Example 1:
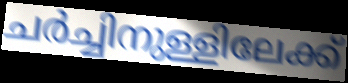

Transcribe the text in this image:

ചർച്ചിനുള്ളിലേക്ക്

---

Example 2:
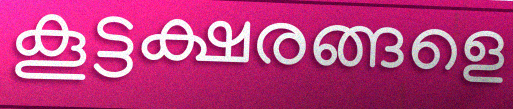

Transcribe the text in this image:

കൂട്ടക്ഷരങ്ങളെ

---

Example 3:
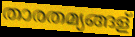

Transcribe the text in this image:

താരതമ്യങ്ങള്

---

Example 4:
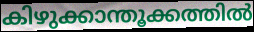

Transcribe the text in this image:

കിഴുക്കാന്തൂക്കത്തിൽ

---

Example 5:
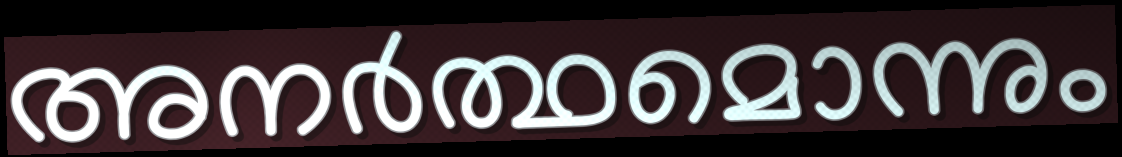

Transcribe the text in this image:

അനർത്ഥമൊന്നും